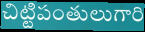
చిట్టిపంతులుగారి